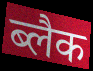
ब्लैक